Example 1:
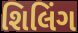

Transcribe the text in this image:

શિલિંગ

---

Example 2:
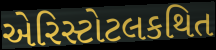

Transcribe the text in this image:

એરિસ્ટોટલકથિત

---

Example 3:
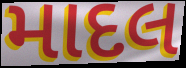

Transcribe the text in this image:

માદલ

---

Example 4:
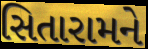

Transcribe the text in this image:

સિતારામને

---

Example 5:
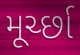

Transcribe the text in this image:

મૂર્ચ્છા